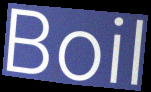
Boil